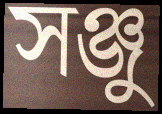
সঞ্জু